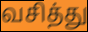
வசித்து